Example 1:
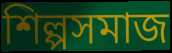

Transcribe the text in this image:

শিল্পসমাজ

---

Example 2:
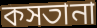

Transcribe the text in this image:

কসতানা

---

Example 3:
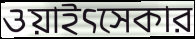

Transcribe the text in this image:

ওয়াইৎসেকার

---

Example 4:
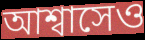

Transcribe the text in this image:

আশ্বাসেও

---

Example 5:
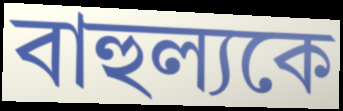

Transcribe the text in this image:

বাহুল্যকে